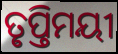
ତୃପ୍ତିମୟୀ